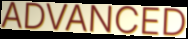
ADVANCED